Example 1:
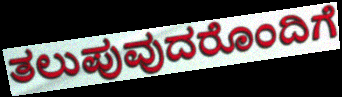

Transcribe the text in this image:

ತಲುಪುವುದರೊಂದಿಗೆ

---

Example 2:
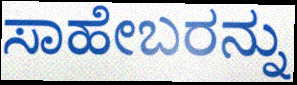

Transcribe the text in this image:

ಸಾಹೇಬರನ್ನು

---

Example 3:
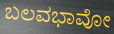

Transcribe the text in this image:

ಬಲವಭಾವೋ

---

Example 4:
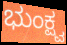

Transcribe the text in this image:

ಭುಂಕ್ಷ್ವ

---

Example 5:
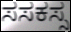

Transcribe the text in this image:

ಸಸಕಸ್ಸ